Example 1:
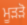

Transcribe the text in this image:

ਮੂੜੜੋ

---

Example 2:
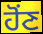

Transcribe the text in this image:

ਹੋਂਣ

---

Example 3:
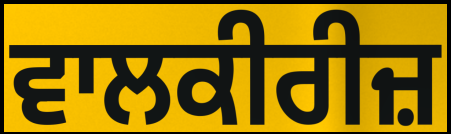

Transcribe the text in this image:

ਵਾਲਕੀਰੀਜ਼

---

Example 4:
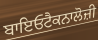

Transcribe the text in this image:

ਬਾਇਓਟੈਕਨਾਲੋਜ਼ੀ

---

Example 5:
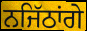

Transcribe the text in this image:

ਨਜਿੱਠਾਂਗੇ